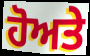
ਹੋਅਤੇ